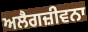
ਅਲੈਗਜ਼ੀਵਨਾ